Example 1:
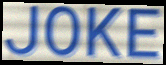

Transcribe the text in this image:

JOKE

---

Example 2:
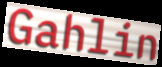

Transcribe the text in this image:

Gahlin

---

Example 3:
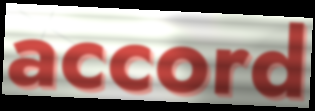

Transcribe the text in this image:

accord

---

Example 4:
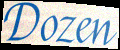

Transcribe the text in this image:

Dozen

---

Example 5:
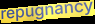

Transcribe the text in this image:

repugnancy